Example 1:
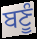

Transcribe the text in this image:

ਬਣੂੰ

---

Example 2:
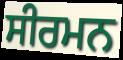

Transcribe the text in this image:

ਸੀਰਮਨ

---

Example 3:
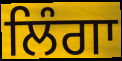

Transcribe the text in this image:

ਲਿੰਗਾ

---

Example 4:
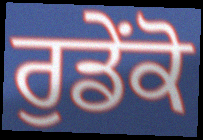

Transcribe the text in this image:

ਰੁਡੇਂਕੋ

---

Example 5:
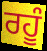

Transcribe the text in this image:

ਰਹੂੰ